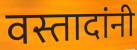
वस्तादांनी